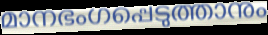
മാനഭംഗപ്പെടുത്താനും